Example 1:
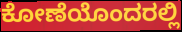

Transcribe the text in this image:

ಕೋಣೆಯೊಂದರಲ್ಲಿ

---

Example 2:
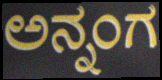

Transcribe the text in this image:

ಅನ್ನಂಗ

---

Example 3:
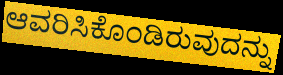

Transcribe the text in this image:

ಆವರಿಸಿಕೊಂಡಿರುವುದನ್ನು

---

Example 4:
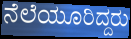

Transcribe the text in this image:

ನೆಲೆಯೂರಿದ್ದರು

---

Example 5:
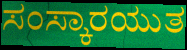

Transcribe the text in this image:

ಸಂಸ್ಕಾರಯುತ